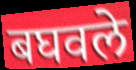
बघवले